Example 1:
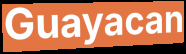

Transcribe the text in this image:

Guayacan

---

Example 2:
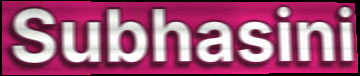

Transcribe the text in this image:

Subhasini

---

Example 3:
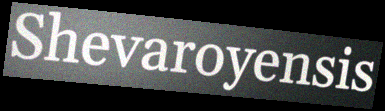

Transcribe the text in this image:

Shevaroyensis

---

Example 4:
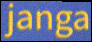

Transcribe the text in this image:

janga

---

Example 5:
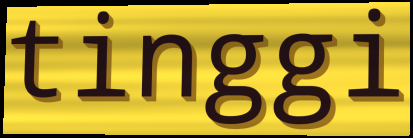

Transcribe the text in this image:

tinggi